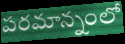
పరమాన్నంలో